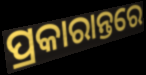
ପ୍ରକାରାନ୍ତରେ